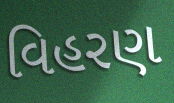
વિહરણ